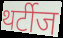
थर्टीज